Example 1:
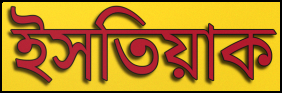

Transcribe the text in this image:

ইসতিয়াক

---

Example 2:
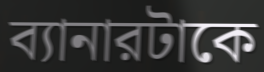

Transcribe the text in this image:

ব্যানারটাকে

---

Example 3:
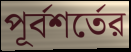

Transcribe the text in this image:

পূর্বশর্তের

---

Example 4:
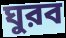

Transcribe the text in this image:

ঘুরব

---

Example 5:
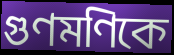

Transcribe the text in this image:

গুণমণিকে